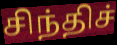
சிந்திச்